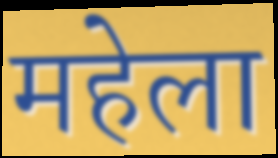
महेला